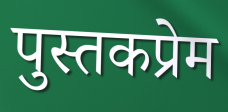
पुस्तकप्रेम